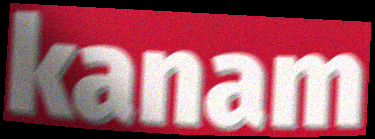
kanam